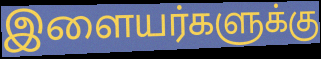
இளையர்களுக்கு